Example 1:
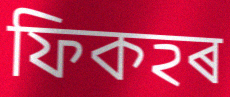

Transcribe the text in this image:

ফিকহৰ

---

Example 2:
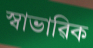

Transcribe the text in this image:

স্বাভাৱিক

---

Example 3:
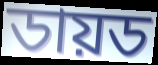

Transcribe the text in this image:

ডায়ড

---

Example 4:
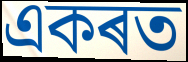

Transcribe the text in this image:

একৰত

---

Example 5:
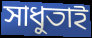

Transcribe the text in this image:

সাধুতাই